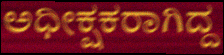
ಅಧೀಕ್ಷಕರಾಗಿದ್ದ